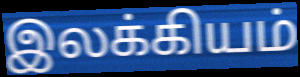
இலக்கியம்